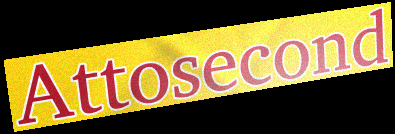
Attosecond